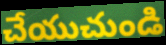
చేయుచుండి